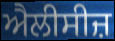
ਐਲੀਸੀਜ਼